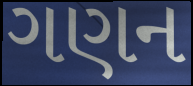
ગણન